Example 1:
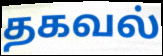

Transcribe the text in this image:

தகவல்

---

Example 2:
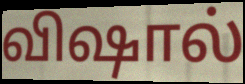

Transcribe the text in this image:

விஷால்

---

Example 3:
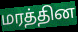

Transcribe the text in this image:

மரத்தின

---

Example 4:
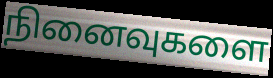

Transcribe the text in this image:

நினைவுகளை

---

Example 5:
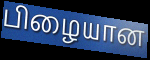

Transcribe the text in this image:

பிழையான